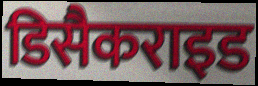
डिसैकराइड